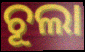
ଚୂଲା